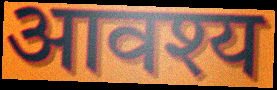
आवश्य